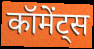
कॉमेंट्स